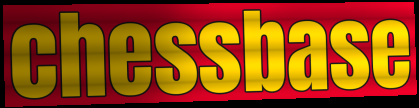
chessbase